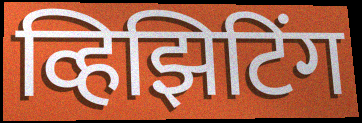
व्हिझिटिंग